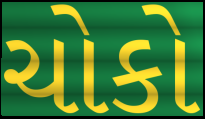
ચોકો